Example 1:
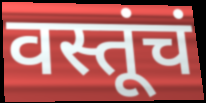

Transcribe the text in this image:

वस्तूंचं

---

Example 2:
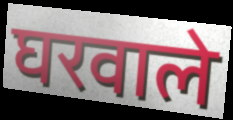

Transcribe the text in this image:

घरवाले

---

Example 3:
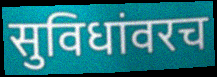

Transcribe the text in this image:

सुविधांवरच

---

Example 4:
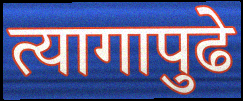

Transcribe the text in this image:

त्यागापुढे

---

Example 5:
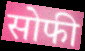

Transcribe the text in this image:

सोफी